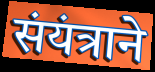
संयंत्राने